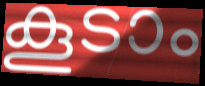
കൂടാം